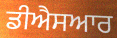
ਡੀਐਸਆਰ